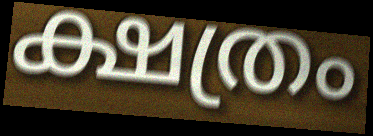
ക്ഷത്രം